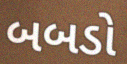
બબડો